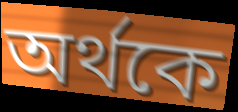
অর্থকে